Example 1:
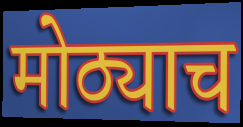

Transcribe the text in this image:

मोठ्याच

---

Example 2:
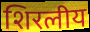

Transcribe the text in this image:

शिरलीय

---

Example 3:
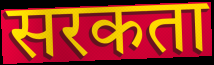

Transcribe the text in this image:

सरकता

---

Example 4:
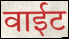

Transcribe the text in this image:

वाईट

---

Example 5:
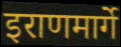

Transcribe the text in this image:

इराणमार्गे